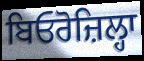
ਬਿਓਰੋਜ਼ਿਲ੍ਹਾ